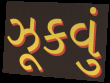
ઝૂકવું